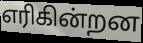
எரிகின்றன